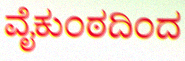
ವೈಕುಂಠದಿಂದ